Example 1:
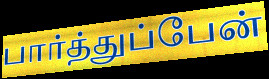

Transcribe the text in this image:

பார்த்துப்பேன்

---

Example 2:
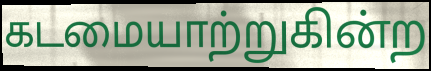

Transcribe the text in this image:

கடமையாற்றுகின்ற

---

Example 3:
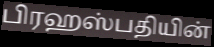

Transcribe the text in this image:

பிரஹஸ்பதியின்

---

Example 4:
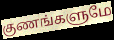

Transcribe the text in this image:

குணங்களுமே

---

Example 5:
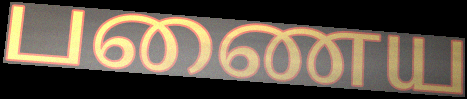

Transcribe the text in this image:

பணைய